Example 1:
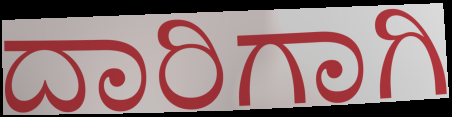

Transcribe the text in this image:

ದಾರಿಗಾಗಿ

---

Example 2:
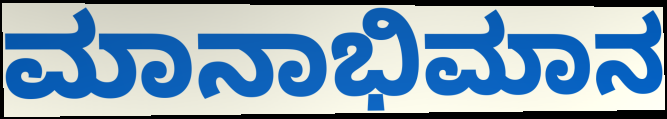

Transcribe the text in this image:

ಮಾನಾಭಿಮಾನ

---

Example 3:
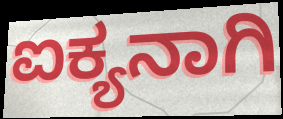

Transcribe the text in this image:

ಐಕ್ಯನಾಗಿ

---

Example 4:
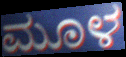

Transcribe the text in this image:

ಮೂಳ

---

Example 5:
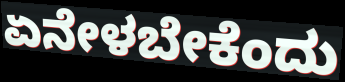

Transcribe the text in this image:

ಏನೇಳಬೇಕೆಂದು